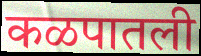
कळपातली